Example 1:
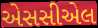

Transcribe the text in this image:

એસસીએલ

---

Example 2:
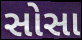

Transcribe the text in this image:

સોસા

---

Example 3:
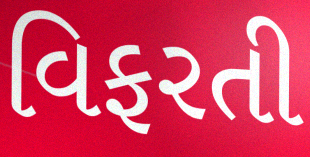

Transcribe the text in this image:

વિફરતી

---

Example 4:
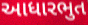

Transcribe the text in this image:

આધારભુત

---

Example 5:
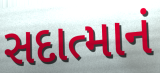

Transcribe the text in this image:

સદાત્માનં